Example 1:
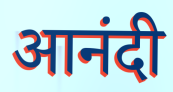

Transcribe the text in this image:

आनंदी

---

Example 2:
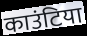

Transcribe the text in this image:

काउंटिया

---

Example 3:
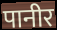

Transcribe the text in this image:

पानीर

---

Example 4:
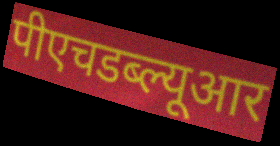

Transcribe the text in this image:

पीएचडब्ल्यूआर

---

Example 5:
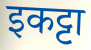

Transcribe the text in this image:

इकट्टा